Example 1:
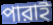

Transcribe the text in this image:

পারাই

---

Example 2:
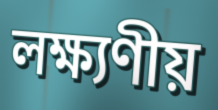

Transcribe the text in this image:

লক্ষ্যণীয়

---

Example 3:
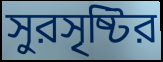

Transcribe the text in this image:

সুরসৃষ্টির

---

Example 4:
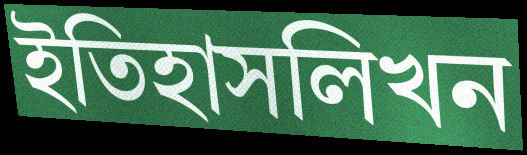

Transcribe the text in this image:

ইতিহাসলিখন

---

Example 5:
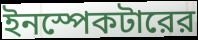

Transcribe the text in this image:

ইনস্পেকটারের